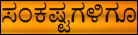
ಸಂಕಷ್ಟಗಳಿಗೂ